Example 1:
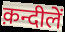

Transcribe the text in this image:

क़न्दीलें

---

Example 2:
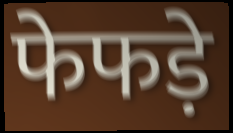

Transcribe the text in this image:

फेफड़े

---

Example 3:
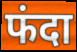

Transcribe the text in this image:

फंदा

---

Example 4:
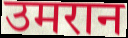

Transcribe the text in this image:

उमरान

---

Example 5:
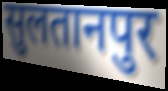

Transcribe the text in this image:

सुलतानपुर